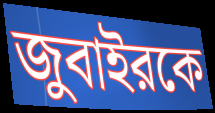
জুবাইরকে